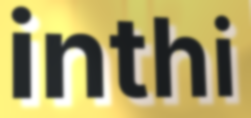
inthi